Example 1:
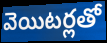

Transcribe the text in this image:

వెయిటర్లతో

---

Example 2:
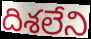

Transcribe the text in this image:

దిశలేని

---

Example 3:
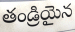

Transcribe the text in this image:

తండ్రియైన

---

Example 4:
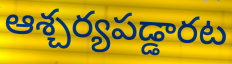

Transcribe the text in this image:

ఆశ్చర్యపడ్డారట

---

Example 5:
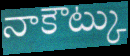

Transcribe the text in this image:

నాకౌట్కు